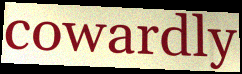
cowardly